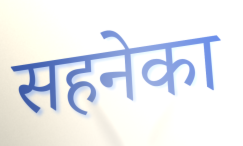
सहनेका